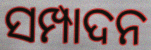
ସମ୍ପାଦନ